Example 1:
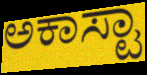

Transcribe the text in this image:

ಅಕಾಸ್ಟಾ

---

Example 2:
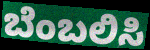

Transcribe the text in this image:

ಬೆಂಬಲಿಸಿ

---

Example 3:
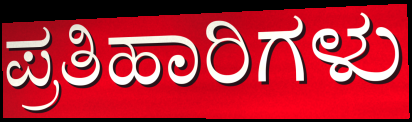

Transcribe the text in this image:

ಪ್ರತಿಹಾರಿಗಳು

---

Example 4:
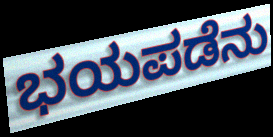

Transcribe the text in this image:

ಭಯಪಡೆನು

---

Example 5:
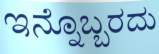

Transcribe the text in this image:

ಇನ್ನೊಬ್ಬರದು